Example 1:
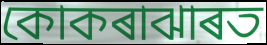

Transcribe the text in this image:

কোকৰাঝাৰত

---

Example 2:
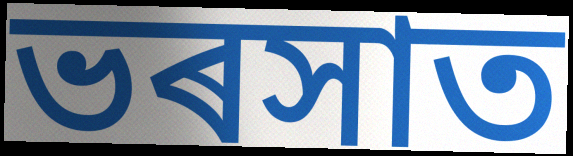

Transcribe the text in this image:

ভৰসাত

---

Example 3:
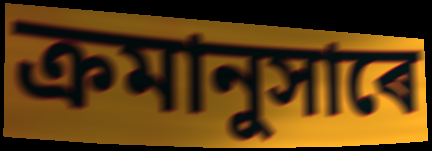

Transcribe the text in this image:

ক্ৰমানুসাৰে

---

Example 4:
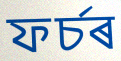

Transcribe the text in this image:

ফৰ্চৰ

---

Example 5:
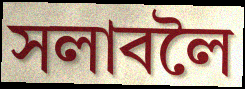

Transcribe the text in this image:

সলাবলৈ